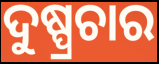
ଦୁଷ୍ପ୍ରଚାର